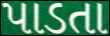
પાડતા